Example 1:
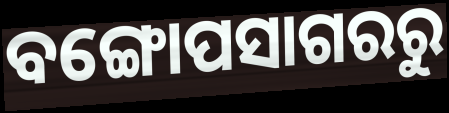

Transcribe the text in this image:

ବଙ୍ଗୋପସାଗରରୁ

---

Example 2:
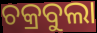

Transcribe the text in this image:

ଚକ୍ରବୁଲା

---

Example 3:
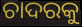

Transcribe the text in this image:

ଚାଦରକୁ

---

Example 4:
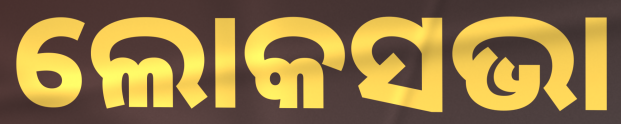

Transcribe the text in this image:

ଲୋକସଭା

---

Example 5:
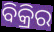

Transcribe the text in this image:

ବିକ୍ରିର